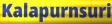
Kalapurnsuri